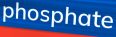
phosphate